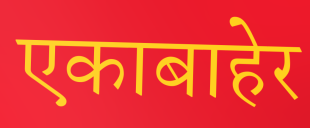
एकाबाहेर